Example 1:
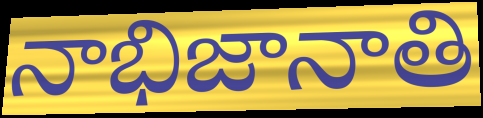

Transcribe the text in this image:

నాభిజానాతి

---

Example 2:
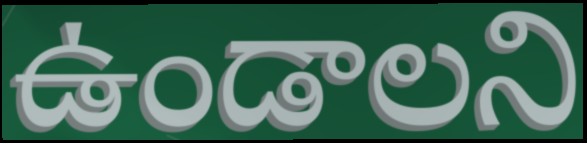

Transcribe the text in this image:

ఉండాలని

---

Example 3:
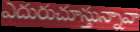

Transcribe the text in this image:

ఎదురుచూస్తున్నావా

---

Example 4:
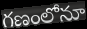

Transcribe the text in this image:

గణంలోనూ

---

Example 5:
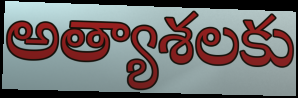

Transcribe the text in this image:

అత్యాశలకు